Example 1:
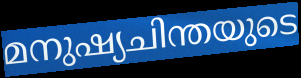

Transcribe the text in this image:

മനുഷ്യചിന്തയുടെ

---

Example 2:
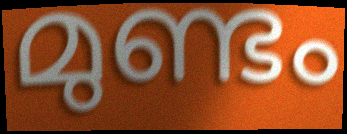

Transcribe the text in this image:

മുണ്ടം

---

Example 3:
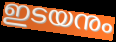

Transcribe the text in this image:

ഇടയനും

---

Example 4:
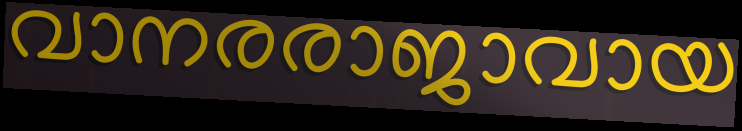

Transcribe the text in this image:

വാനരരാജാവായ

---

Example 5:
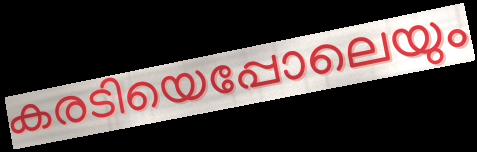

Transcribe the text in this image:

കരടിയെപ്പോലെയും